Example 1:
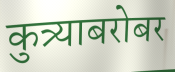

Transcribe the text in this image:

कुत्र्याबरोबर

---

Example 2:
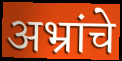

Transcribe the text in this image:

अभ्रांचे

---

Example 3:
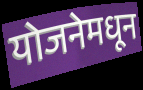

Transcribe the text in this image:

योजनेमधून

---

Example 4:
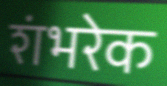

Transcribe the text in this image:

शंभरेक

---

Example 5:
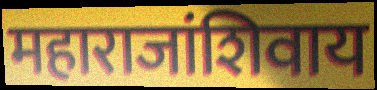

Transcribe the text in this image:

महाराजांशिवाय